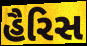
હૈરિસ